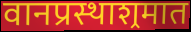
वानप्रस्थाश्रमात